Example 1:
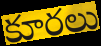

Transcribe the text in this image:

కూరలు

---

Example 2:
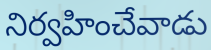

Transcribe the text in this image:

నిర్వహించేవాడు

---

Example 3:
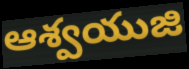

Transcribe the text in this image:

ఆశ్వయుజి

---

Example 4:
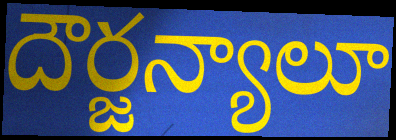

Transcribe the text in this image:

దౌర్జన్యాలూ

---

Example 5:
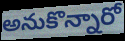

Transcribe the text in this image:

అనుకొన్నారో